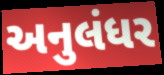
અનુલંધર